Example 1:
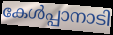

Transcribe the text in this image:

കേൾപ്പാനാടി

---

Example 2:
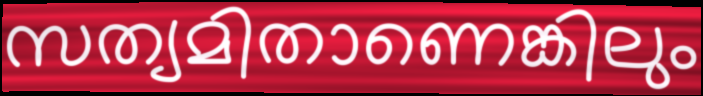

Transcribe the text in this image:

സത്യമിതാണെങ്കിലും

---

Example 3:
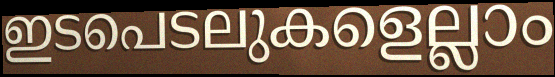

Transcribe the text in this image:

ഇടപെടലുകളെല്ലാം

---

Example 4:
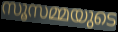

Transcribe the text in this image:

സൂസമ്മയുടെ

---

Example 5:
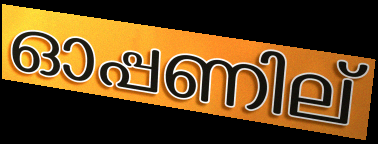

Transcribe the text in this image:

ഓപ്പണില്